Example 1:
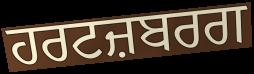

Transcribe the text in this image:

ਹਰਟਜ਼ਬਰਗ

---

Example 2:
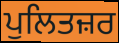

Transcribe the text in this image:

ਪੁਲਿਤਜ਼ਰ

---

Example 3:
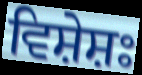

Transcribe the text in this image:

ਵਿਸ਼ੇਸ਼ਃ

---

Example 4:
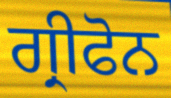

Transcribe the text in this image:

ਗ੍ਰੀਫੋਨ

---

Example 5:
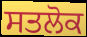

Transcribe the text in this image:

ਸਤਲੋਕ